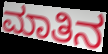
ಮಾತಿನ